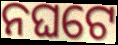
ନଘଟେ